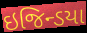
ઇજિન્ડયા